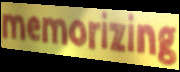
memorizing